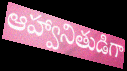
ఆహ్వానితుడిగా